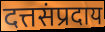
दत्तसंप्रदाय